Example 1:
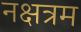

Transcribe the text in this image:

नक्षत्रम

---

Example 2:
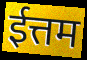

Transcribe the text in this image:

ईत्तम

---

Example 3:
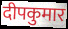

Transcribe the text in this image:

दीपकुमार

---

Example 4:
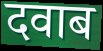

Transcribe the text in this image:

दवाब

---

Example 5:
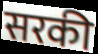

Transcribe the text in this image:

सरकी